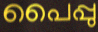
പൈപ്പു